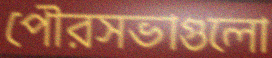
পৌরসভাগুলো